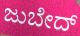
ಜುಬೇದ್